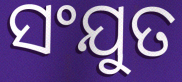
ସଂଯୁତ